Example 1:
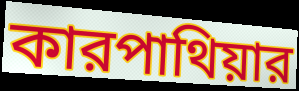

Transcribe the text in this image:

কারপাথিয়ার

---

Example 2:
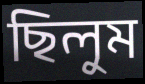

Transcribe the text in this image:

ছিলুম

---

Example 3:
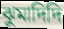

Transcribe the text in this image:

ঝুমাদিদি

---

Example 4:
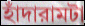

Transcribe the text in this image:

হাঁদারামটা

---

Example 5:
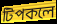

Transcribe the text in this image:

টিপকলে